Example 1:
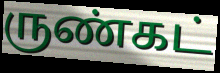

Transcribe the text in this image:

ருண்கட்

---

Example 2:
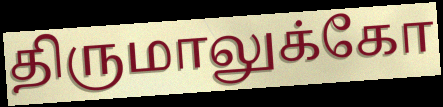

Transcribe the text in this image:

திருமாலுக்கோ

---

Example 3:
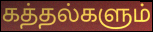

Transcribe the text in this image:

கத்தல்களும்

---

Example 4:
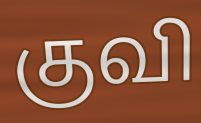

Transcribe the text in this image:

குவி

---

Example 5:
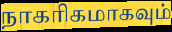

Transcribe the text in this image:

நாகரிகமாகவும்